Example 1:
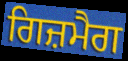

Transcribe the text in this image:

ਗਿਜ਼ਮੈਗ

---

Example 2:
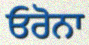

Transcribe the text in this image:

ਓਰੋਨਾ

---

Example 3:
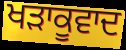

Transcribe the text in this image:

ਖੜਾਕੂਵਾਦ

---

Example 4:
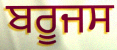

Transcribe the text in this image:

ਬਰੂਜਸ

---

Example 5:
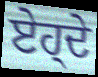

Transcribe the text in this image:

ਏਹ੍ਦੇ